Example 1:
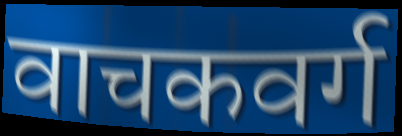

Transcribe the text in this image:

वाचकवर्ग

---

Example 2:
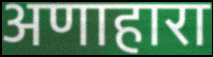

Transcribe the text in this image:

अणाहारा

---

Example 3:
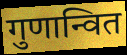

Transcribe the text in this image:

गुणान्वित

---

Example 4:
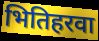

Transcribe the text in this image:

भितिहरवा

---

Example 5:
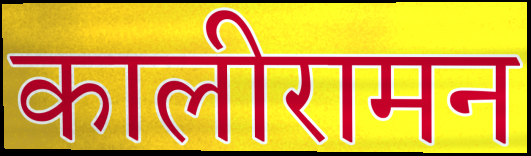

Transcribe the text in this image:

कालीरामन